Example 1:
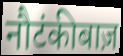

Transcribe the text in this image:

नौटंकीबाज़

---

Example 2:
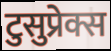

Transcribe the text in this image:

टुसुप्रेक्स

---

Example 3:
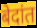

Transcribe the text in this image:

बेदांत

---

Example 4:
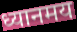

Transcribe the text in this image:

ध्यानमय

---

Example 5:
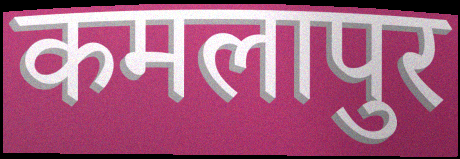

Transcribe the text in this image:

कमलापुर